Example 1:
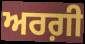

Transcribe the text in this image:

ਅਰਗ਼ੀ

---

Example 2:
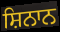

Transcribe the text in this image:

ਸ਼ਿਨਾਨ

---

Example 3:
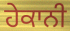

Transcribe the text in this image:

ਹੇਕਾਨੀ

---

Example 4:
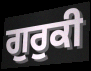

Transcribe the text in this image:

ਗੁਰੁਕੀ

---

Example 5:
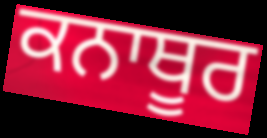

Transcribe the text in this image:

ਕਨਾਥੂਰ